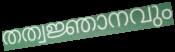
തത്വജ്ഞാനവും